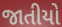
જાતીયો